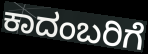
ಕಾದಂಬರಿಗೆ